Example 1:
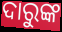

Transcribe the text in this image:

ଦାରୁଙ୍କ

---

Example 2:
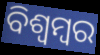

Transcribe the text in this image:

ବିଶ୍ଵମ୍ବର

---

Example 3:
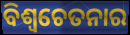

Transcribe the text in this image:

ବିଶ୍ଵଚେତନାର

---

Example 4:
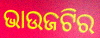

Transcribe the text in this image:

ଭାଉଜଟିର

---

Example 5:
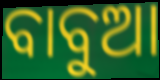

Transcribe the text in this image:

ବାବୁଆ